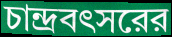
চান্দ্রবৎসরের